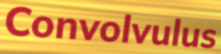
Convolvulus